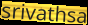
srivathsa